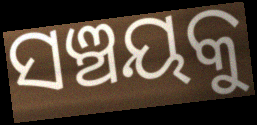
ସଞ୍ଚୟକୁ